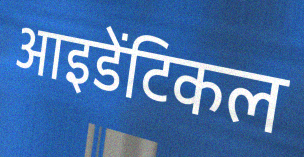
आइडेंटिकल